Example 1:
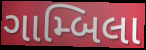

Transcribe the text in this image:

ગામ્બિલા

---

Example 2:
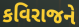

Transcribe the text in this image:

કવિરાજને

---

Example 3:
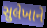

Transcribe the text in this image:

સુલેખાને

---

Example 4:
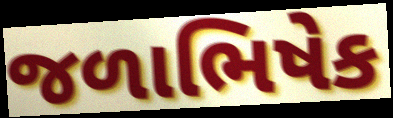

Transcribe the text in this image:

જળાભિષેક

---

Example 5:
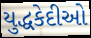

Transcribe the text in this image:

યુદ્ધકેદીઓ